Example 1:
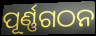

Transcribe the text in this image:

ପୂର୍ଣ୍ଣଗଠନ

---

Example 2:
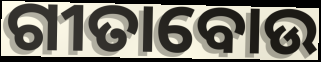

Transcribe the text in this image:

ଗୀତାବୋଉ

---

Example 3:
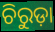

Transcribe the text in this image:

ଚିରୁଡ଼ା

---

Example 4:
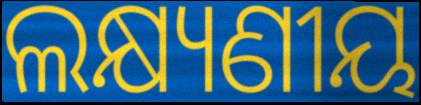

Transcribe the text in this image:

ଲକ୍ଷ୍ୟଣୀୟ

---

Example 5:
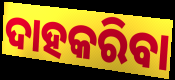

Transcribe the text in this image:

ଦାହକରିବା